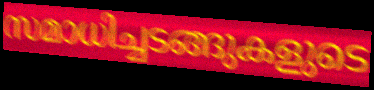
സമാധിച്ചടങ്ങുകളുടെ